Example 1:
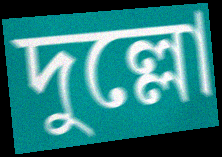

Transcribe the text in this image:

দুল্লো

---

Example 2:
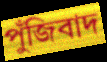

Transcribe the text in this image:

পুঁজিবাদ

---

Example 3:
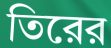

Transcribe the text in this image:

তিরের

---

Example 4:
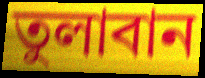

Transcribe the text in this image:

তুলাবান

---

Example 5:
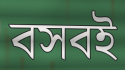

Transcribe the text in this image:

বসবই